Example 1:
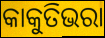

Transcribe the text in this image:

କାକୁତିଭରା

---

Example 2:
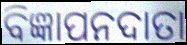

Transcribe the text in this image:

ବିଜ୍ଞାପନଦାତା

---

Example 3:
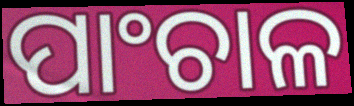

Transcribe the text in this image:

ପାଂଚାଳ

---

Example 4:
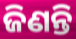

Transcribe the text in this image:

ଜିଣନ୍ତି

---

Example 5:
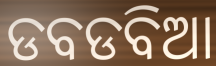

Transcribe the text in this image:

ଡବଡବିଆ